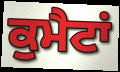
ਕੁਮੈਟਾਂ